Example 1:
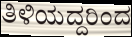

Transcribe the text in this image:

ತಿಳಿಯದ್ದರಿಂದ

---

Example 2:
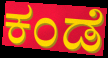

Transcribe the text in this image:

ಕಂಡೆ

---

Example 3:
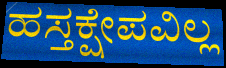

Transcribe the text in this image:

ಹಸ್ತಕ್ಷೇಪವಿಲ್ಲ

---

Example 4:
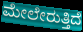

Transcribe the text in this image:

ಮೇಲೇರುತ್ತಿದೆ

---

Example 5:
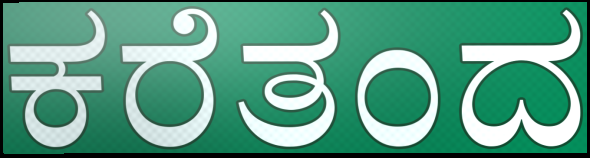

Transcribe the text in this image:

ಕರೆತಂದ